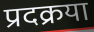
प्रदक्रया